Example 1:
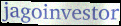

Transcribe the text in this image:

jagoinvestor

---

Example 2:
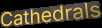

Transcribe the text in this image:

Cathedrals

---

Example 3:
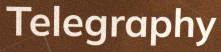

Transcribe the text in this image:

Telegraphy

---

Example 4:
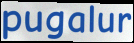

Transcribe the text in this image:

pugalur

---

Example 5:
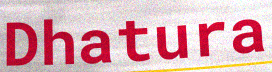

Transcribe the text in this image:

Dhatura